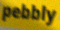
pebbly